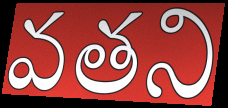
వతని